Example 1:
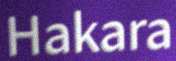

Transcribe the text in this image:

Hakara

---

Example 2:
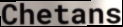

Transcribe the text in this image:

Chetans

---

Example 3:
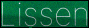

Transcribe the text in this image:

Lissen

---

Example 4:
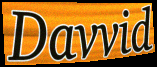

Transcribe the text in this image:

Davvid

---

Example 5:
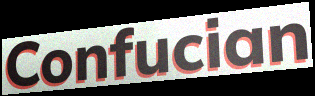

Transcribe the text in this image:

Confucian